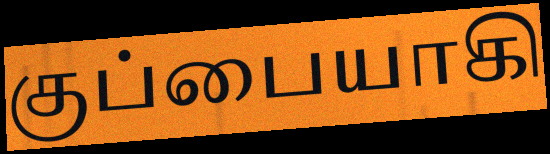
குப்பையாகி